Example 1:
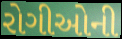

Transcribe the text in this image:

રોગીઓની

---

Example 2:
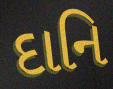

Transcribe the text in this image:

દાનિ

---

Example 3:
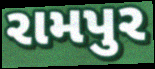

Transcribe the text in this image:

રામપુર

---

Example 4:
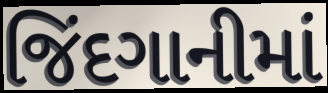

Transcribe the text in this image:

જિંદગાનીમાં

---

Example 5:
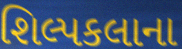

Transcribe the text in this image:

શિલ્પકલાના